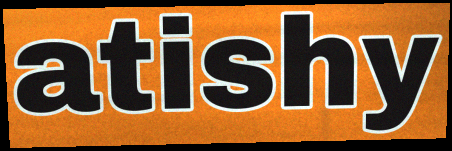
atishy